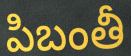
పిబంతీ